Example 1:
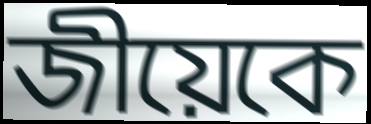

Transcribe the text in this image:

জীয়েকে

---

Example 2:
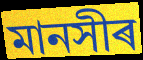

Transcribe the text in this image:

মানসীৰ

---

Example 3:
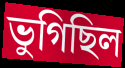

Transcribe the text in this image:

ভুগিছিল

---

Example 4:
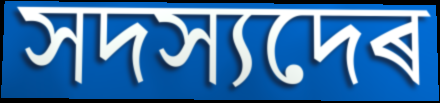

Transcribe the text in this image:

সদস্যদেৰ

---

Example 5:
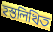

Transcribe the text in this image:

হস্তলিখিত